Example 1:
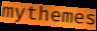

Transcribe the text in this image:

mythemes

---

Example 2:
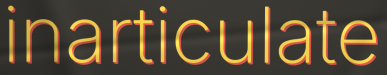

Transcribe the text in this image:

inarticulate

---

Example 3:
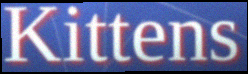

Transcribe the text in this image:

Kittens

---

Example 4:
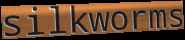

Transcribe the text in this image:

silkworms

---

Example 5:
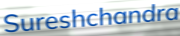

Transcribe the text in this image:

Sureshchandra